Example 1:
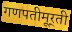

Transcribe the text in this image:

गणपतीमूर्ती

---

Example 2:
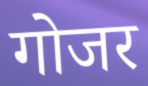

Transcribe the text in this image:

गोजर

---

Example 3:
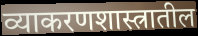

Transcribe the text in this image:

व्याकरणशास्त्रातील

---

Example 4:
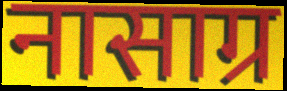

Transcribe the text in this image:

नासाग्र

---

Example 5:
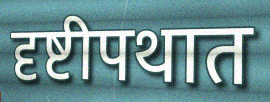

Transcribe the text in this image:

दृष्टीपथात